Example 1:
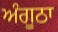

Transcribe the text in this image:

ਅੰਗੂਠਾ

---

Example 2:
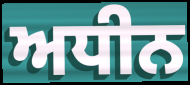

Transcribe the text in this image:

ਅਧੀਨ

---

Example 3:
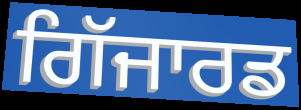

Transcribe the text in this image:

ਗਿੱਜਾਰਡ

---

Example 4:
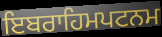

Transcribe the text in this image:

ਇਬਰਾਹਿਮਪਟਨਮ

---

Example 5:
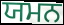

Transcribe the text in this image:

ਯਮਨ